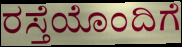
ರಸ್ತೆಯೊಂದಿಗೆ